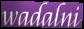
wadalni